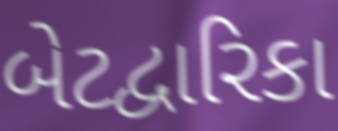
બેટદ્વારિકા